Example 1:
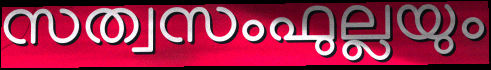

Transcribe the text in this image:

സത്വസംഫുല്ലയും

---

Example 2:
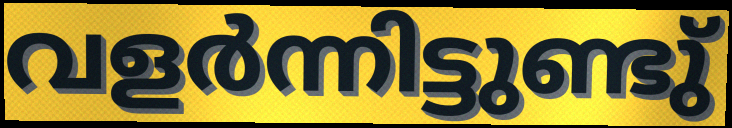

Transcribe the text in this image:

വളർന്നിട്ടുണ്ടു്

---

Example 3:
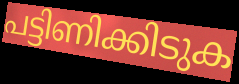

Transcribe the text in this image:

പട്ടിണിക്കിടുക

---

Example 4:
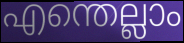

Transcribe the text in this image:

എന്തെല്ലാം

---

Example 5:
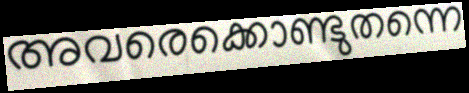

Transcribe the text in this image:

അവരെക്കൊണ്ടുതന്നെ